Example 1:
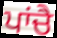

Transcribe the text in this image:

ਪਾਂਚੈ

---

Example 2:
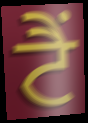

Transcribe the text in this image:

ਟੈੰ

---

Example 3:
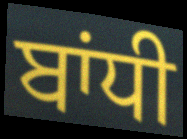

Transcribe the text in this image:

ਬਾਂਧੀ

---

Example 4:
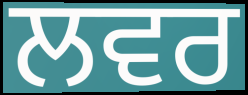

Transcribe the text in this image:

ਲਵਰ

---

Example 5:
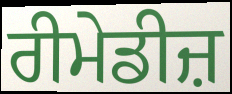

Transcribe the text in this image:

ਰੀਮੇਡੀਜ਼